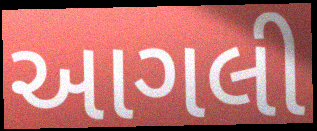
આગલી